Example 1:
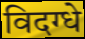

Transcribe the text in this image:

विदग्धे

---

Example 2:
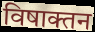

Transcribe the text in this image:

विषाक्तन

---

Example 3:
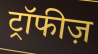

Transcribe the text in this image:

ट्रॉफीज़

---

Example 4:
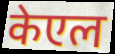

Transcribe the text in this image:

केएल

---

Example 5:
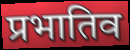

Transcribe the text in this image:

प्रभातिव